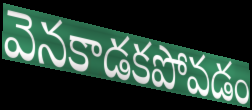
వెనకాడకపోవడం